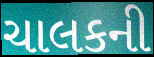
ચાલકની